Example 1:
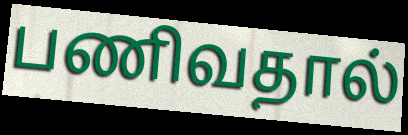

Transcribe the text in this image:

பணிவதால்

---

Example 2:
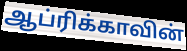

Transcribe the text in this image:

ஆப்ரிக்காவின்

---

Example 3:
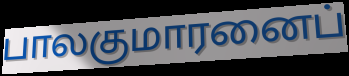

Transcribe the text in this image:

பாலகுமாரனைப்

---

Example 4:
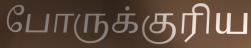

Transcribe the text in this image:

போருக்குரிய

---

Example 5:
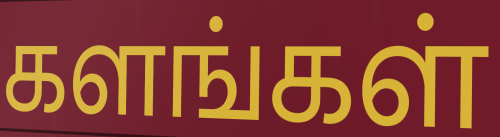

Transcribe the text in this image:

களங்கள்